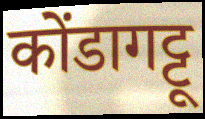
कोंडागट्टू